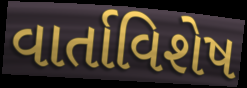
વાર્તાવિશેષ